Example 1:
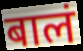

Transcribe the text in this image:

बालं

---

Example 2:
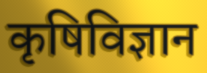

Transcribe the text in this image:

कृषिविज्ञान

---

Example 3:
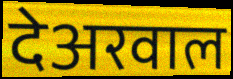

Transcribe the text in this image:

देअरवाल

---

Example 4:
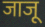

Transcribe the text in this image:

जाजू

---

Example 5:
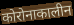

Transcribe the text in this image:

कोरोनाकालीन